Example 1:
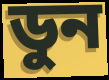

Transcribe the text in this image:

ডুন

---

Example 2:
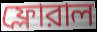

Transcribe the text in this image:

ফ্লোরাল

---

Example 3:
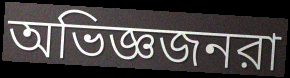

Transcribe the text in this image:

অভিজ্ঞজনরা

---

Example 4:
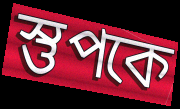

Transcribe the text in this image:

স্তুপকে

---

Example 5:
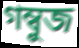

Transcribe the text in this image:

গম্বুজ